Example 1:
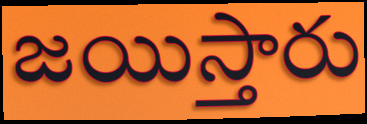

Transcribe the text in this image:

జయిస్తారు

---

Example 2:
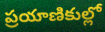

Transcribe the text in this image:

ప్రయాణికుల్లో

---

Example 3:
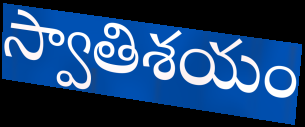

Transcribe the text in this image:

స్వాతిశయం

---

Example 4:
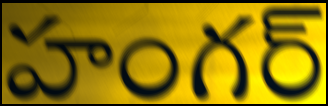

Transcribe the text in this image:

హంగర్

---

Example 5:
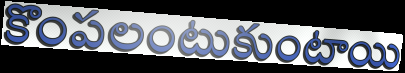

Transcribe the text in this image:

కొంపలంటుకుంటాయి